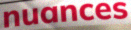
nuances